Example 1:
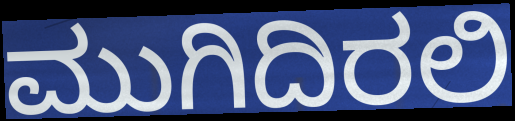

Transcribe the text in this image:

ಮುಗಿದಿರಲಿ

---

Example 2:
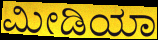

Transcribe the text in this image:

ಮೀಡಿಯಾ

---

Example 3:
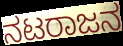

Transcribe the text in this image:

ನಟರಾಜನ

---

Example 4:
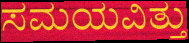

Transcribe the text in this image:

ಸಮಯವಿತ್ತು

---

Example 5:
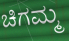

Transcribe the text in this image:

ಚಿಗಮ್ಮ